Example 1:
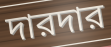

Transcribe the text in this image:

দারদার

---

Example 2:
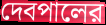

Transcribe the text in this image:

দেবপালের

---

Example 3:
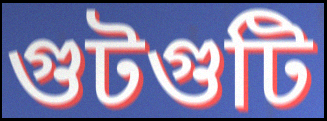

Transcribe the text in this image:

গুটগুটি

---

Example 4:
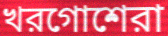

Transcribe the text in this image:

খরগোশেরা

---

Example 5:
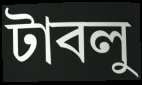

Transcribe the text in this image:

টাবলু